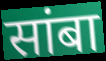
सांबा